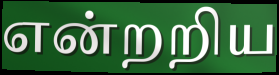
என்றறிய